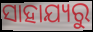
ସାହାଯ୍ୟରୁ